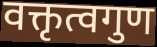
वक्तृत्वगुण